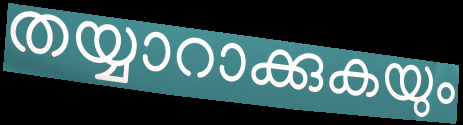
തയ്യാറാക്കുകയും